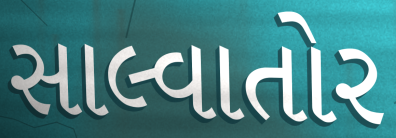
સાલ્વાતોર